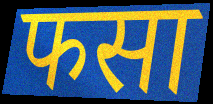
फसा